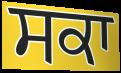
ਸਕਾ